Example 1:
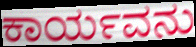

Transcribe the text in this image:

ಕಾರ್ಯವನು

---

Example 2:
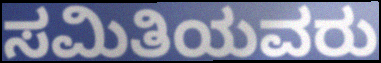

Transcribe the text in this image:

ಸಮಿತಿಯವರು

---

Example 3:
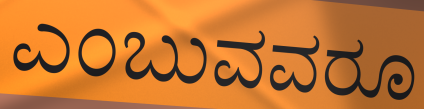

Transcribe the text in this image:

ಎಂಬುವವರೂ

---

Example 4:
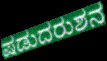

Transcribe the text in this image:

ಷಡುದರುಶನ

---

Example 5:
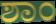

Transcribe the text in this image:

ಶಾಂ